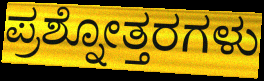
ಪ್ರಶ್ನೋತ್ತರಗಳು